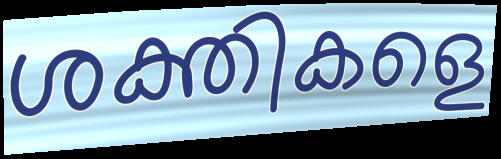
ശക്തികളെ